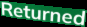
Returned